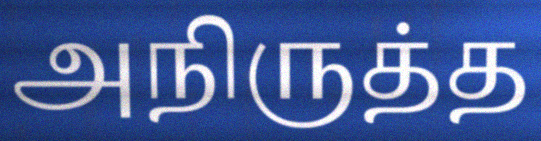
அநிருத்த